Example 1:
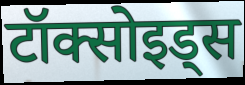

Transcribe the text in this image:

टॉक्सोइड्स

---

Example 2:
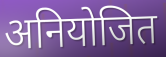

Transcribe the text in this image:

अनियोजित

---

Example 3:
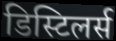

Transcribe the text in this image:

डिस्टिलर्स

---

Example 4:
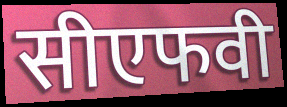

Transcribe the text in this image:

सीएफवी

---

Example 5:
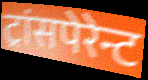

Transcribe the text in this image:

ट्रांसपेरेन्ट